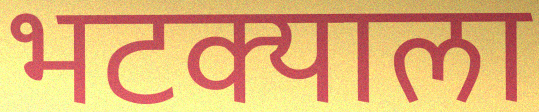
भटक्याला